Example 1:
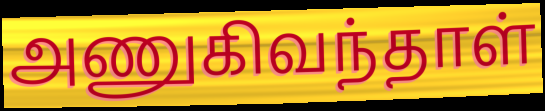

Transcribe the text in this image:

அணுகிவந்தாள்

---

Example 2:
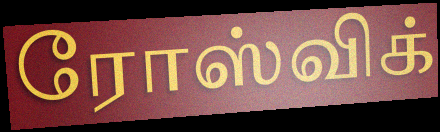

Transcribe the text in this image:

ரோஸ்விக்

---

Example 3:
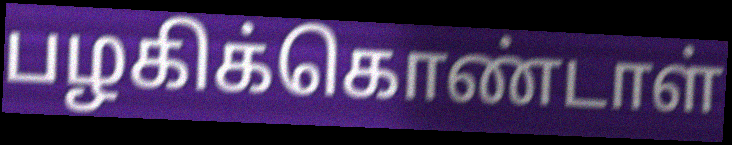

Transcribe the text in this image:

பழகிக்கொண்டாள்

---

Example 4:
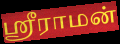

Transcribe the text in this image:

ஸ்ரீராமன்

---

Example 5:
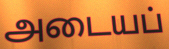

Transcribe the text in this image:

அடையப்